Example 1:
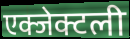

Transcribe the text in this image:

एक्जेक्टली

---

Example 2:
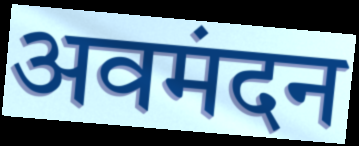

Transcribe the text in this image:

अवमंदन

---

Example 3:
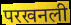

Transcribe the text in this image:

परखनली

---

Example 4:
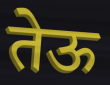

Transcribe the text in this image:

तेऊ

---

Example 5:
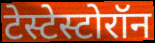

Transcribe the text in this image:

टेस्टेस्टोरॉन